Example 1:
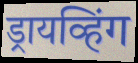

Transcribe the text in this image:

ड्रायव्हिंग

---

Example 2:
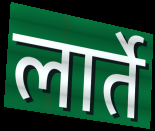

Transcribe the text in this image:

लार्ते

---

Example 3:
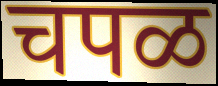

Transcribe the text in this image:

चपळ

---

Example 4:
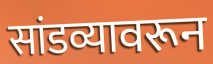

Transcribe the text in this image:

सांडव्यावरून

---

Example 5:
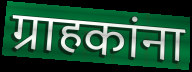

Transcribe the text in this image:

ग्राहकांना